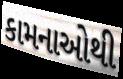
કામનાઓથી